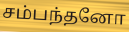
சம்பந்தனோ